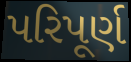
પરિપૂર્ણ